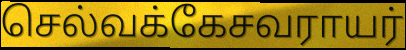
செல்வக்கேசவராயர்